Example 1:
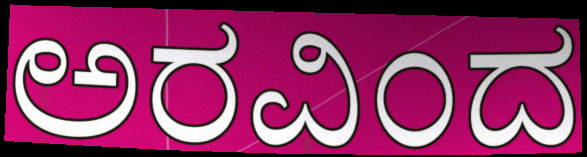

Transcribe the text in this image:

ಅರವಿಂದ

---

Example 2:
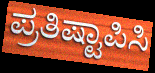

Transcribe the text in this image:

ಪ್ರತಿಷ್ಟಾಪಿಸಿ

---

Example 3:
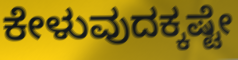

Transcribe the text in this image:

ಕೇಳುವುದಕ್ಕಷ್ಟೇ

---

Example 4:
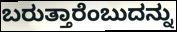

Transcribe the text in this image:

ಬರುತ್ತಾರೆಂಬುದನ್ನು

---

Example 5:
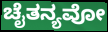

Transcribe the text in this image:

ಚೈತನ್ಯವೋ